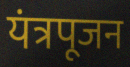
यंत्रपूजन